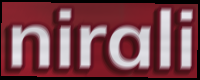
nirali